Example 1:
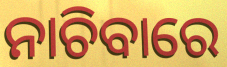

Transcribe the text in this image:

ନାଚିବାରେ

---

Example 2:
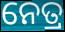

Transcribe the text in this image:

ନେତ୍ର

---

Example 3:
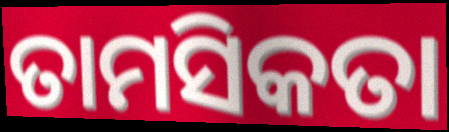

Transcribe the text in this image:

ତାମସିକତା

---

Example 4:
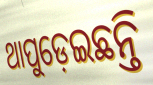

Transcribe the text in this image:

ଥାପୁଡ଼େଇଛନ୍ତି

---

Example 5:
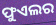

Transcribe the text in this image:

ଫୁଏଲର